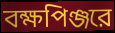
বক্ষপিঞ্জরে